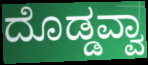
ದೊಡ್ಡವ್ವಾ